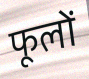
फूलों